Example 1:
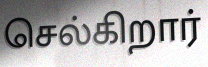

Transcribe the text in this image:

செல்கிறார்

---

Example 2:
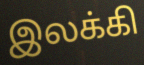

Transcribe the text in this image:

இலக்கி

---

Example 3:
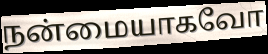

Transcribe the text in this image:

நன்மையாகவோ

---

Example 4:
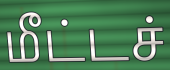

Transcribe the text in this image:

மீட்டச்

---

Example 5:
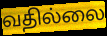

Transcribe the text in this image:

வதில்லை